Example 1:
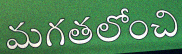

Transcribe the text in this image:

మగతలోంచి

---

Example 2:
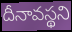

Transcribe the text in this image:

దీనావస్థని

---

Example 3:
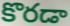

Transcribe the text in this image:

కొరడా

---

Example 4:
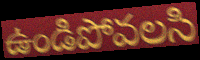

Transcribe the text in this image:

ఉండిపోవలసి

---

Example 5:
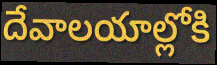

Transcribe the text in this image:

దేవాలయాల్లోకి